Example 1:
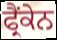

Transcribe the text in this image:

ਫ੍ਰੈਂਕੇਨ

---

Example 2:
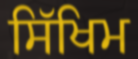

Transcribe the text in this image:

ਸਿੱਖਿਮ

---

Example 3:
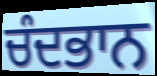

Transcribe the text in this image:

ਚੰਦਭਾਨ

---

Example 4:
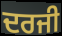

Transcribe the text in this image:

ਦਰਜੀ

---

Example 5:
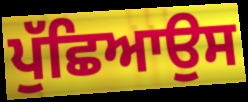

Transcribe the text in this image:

ਪੁੱਛਿਆਉਸ